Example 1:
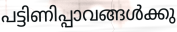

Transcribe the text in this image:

പട്ടിണിപ്പാവങ്ങൾക്കു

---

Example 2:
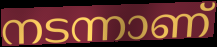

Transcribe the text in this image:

നടന്നാണ്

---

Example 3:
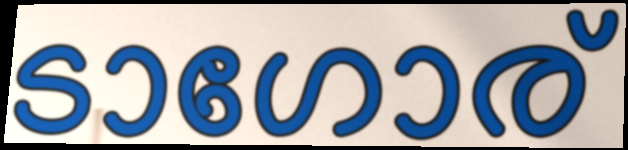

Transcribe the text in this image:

ടാഗോര്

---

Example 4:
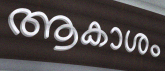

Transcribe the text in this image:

ആകാശം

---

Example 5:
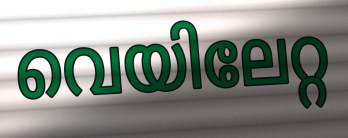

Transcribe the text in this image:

വെയിലേറ്റ